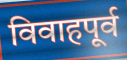
विवाहपूर्व